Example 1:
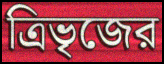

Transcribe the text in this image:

ত্রিভৃজের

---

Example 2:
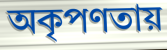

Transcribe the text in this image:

অকৃপণতায়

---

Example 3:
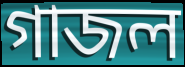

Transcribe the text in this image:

গাজল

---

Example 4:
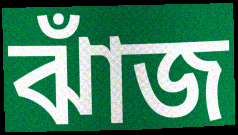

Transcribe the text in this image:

ঝাঁজ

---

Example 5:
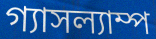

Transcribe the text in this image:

গ্যাসল্যাম্প